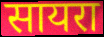
सायरा